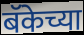
बॅकेच्या